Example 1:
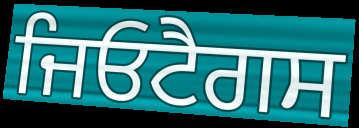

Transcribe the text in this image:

ਜਿਓਟੈਗਸ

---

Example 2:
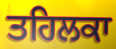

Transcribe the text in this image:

ਤਹਿਲਕਾ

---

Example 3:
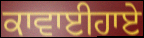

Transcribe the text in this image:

ਕਾਵਾਈਹਾਏ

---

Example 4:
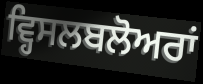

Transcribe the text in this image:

ਵ੍ਹਿਸਲਬਲੋਅਰਾਂ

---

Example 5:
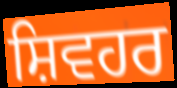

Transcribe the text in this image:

ਸ਼ਿਵਹਰ